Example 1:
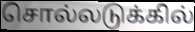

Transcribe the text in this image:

சொல்லடுக்கில்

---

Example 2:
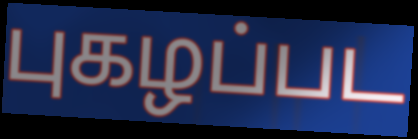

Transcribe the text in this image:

புகழப்பட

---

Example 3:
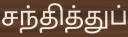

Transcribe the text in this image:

சந்தித்துப்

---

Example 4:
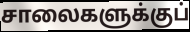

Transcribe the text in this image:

சாலைகளுக்குப்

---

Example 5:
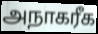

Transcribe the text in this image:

அநாகரீக